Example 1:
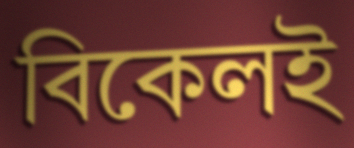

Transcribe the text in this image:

বিকেলই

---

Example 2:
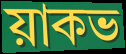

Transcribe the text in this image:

য়াকভ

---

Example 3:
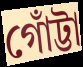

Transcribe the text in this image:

গোঁট্টা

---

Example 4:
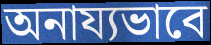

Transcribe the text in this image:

অনায্যভাবে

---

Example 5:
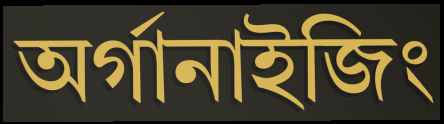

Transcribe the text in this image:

অর্গানাইজিং